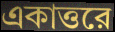
একাত্তরে